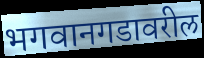
भगवानगडावरील